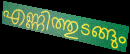
എണ്ണിത്തുടങ്ങും